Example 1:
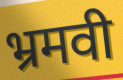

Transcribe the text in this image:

भ्रमवी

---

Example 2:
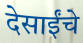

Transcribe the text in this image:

देसाईंचे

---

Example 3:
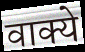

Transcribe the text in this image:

वाक्ये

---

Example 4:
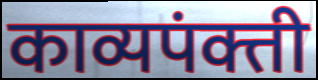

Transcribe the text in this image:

काव्यपंक्ती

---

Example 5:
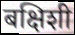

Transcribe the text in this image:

बक्षिशी